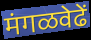
मंगळवेढें